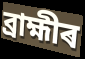
ব্ৰাহ্মীৰ